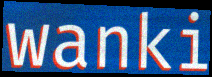
wanki